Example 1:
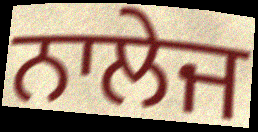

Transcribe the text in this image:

ਨਾਲੇਜ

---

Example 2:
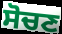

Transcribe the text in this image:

ਸੋਚਣ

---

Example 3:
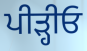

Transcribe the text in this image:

ਪੀੜ੍ਹੀਓ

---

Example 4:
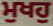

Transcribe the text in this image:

ਮੁਖਹੁ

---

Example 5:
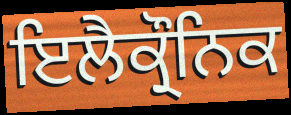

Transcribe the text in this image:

ਇਲੈਕ੍ਰੌਨਿਕ